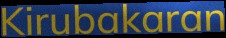
Kirubakaran